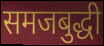
समजबुद्धी